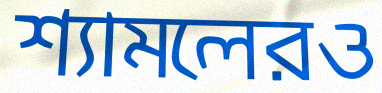
শ্যামলেরও